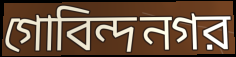
গোবিন্দনগর